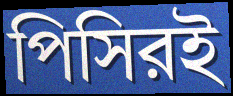
পিসিরই